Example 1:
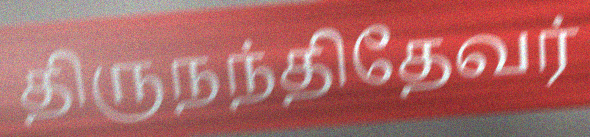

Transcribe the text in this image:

திருநந்திதேவர்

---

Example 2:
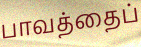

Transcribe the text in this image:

பாவத்தைப்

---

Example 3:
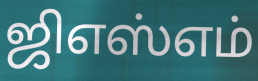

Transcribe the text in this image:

ஜிஎஸ்எம்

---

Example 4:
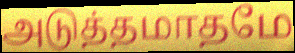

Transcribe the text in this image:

அடுத்தமாதமே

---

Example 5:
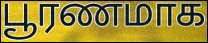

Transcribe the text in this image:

பூரணமாக